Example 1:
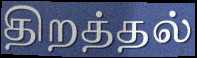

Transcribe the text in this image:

திறத்தல்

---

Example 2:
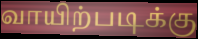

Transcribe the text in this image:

வாயிற்படிக்கு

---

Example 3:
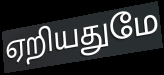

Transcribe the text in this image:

ஏறியதுமே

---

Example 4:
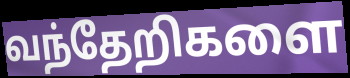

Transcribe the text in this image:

வந்தேறிகளை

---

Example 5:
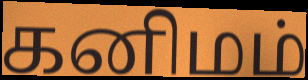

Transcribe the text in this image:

கனிமம்